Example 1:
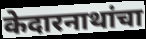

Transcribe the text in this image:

केदारनाथांचा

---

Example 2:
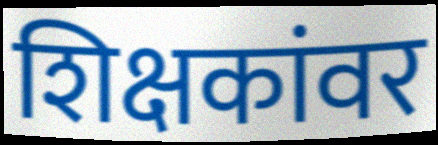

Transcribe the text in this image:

शिक्षकांवर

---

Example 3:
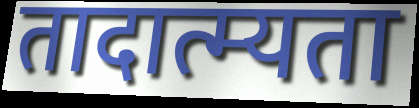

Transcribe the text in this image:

तादात्म्यता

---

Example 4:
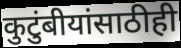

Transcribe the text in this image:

कुटुंबीयांसाठीही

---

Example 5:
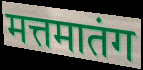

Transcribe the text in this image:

मत्तमातंग